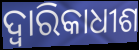
ଦ୍ୱାରିକାଧୀଶ